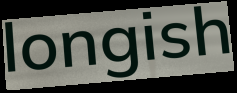
longish